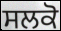
ਸਲਕੋ